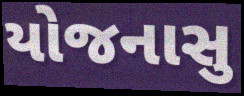
યોજનાસુ